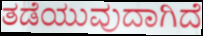
ತಡೆಯುವುದಾಗಿದೆ